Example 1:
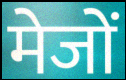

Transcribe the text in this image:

मेजों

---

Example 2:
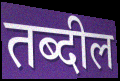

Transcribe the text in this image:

तब्‍दील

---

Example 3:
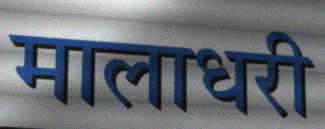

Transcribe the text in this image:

मालाधरी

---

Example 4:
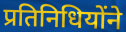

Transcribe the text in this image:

प्रतिनिधियोंने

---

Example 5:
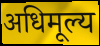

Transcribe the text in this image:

अधिमूल्य